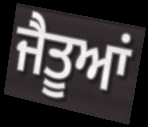
ਜੈਤੂਆਂ